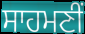
ਸਾਹਮਣੀਂ